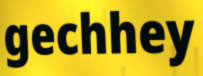
gechhey